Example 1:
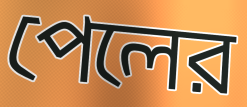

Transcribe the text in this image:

পেলের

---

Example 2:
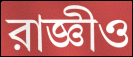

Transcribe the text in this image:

রাজ্ঞীও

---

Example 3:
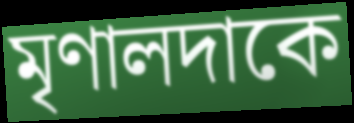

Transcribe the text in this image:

মৃণালদাকে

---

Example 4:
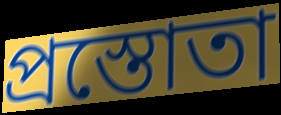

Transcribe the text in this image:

প্রস্তোতা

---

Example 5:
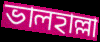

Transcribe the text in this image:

ভালহাল্লা